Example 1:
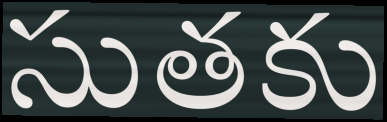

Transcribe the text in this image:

సుతకు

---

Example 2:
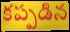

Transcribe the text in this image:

కప్పడిన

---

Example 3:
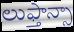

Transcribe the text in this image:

లుఫ్తాన్సా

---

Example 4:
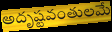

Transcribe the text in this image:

అదృష్టవంతులమే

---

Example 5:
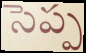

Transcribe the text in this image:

సెప్ప